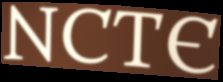
NCTE